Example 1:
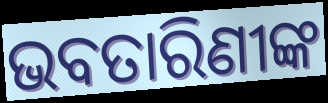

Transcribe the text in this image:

ଭବତାରିଣୀଙ୍କ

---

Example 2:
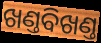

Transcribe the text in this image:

ଖଣ୍ତବିଖଣ୍ତ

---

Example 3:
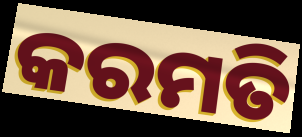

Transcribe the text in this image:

କରମତି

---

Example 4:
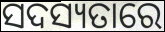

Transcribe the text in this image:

ସଦସ୍ୟତାରେ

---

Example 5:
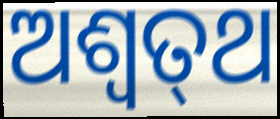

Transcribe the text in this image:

ଅଶ୍ଵତ୍‍ଥ